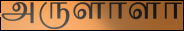
அருளாளா